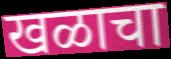
खळाचा